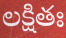
లక్షితః